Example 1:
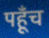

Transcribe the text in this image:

पहूँच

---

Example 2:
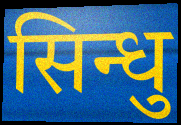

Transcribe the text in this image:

सिन्धु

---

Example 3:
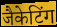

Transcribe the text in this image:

जैकेटिंग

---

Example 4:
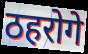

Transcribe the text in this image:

ठहरोगे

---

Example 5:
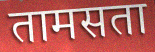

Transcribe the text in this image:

तामसता